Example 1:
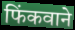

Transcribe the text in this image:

फिंकवाने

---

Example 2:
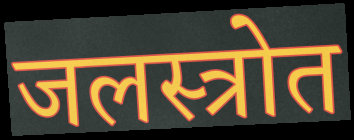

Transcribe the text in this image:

जलस्त्रोत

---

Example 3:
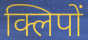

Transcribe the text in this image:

क्लिपों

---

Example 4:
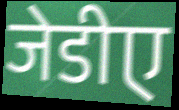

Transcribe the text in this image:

जेडीए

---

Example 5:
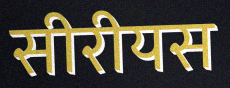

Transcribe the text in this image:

सीरीयस